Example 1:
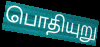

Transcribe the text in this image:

பொதியுறு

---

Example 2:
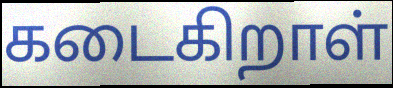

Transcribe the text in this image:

கடைகிறாள்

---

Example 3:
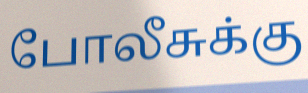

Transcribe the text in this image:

போலீசுக்கு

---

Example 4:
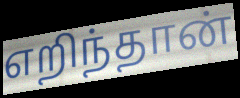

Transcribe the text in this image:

எறிந்தான்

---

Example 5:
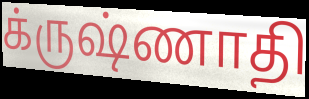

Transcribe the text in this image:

க்ருஷ்ணாதி